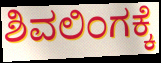
ಶಿವಲಿಂಗಕ್ಕೆ